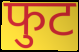
फुट